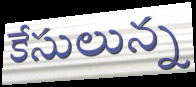
కేసులున్న